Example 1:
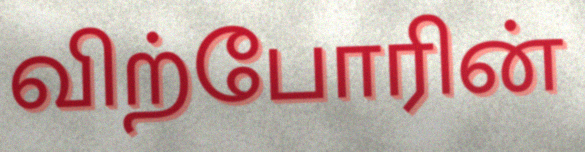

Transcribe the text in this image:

விற்போரின்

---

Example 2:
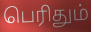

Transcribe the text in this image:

பெரிதும்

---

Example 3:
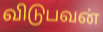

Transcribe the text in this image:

விடுபவன்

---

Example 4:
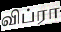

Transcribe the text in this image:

விப்ரா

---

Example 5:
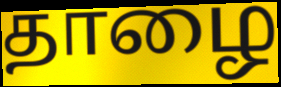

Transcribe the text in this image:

தாழை